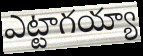
ఎట్టాగయ్యా